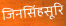
जिनसिंहसूरि